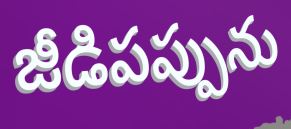
జీడిపప్పును